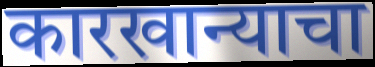
कारखान्याचा